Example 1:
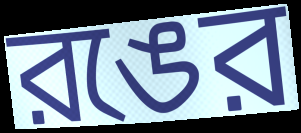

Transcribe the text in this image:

রঙের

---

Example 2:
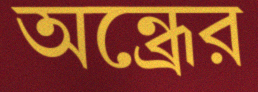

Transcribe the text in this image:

অন্ধ্রের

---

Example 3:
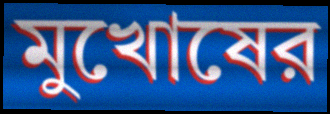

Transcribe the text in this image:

মুখোষের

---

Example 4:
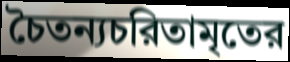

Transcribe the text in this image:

চৈতন্যচরিতামৃতের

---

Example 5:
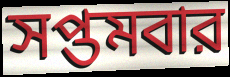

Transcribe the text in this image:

সপ্তমবার